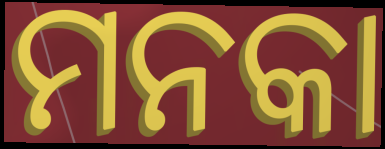
ମନକା